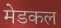
मेडकल